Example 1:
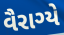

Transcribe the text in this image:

વૈરાગ્યે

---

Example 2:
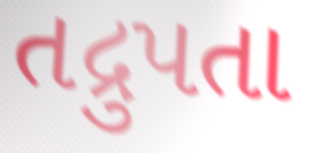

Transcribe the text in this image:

તદ્રુપતા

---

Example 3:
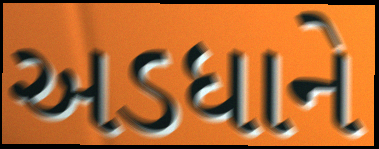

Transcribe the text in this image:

અડધાને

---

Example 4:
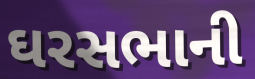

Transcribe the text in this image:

ઘરસભાની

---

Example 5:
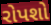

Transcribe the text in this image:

રોપશો